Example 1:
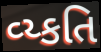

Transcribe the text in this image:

વ્ય્કતિ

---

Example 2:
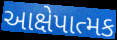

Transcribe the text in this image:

આક્ષેપાત્મક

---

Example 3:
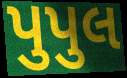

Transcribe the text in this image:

પુપુલ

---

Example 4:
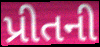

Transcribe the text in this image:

પ્રીતની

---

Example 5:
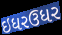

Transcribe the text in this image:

ઇધરઉધર